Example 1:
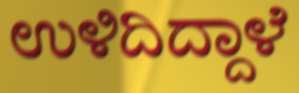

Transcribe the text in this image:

ಉಳಿದಿದ್ದಾಳೆ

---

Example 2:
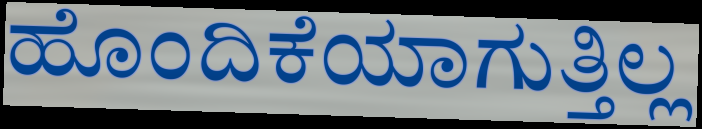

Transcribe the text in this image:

ಹೊಂದಿಕೆಯಾಗುತ್ತಿಲ್ಲ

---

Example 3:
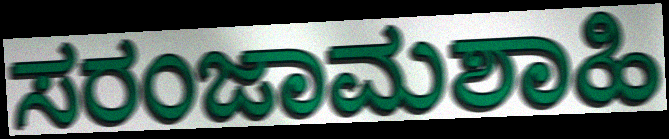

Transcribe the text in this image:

ಸರಂಜಾಮಶಾಹಿ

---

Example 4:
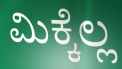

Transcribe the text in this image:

ಮಿಕ್ಕೆಲ್ಲ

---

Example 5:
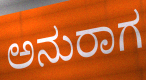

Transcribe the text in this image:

ಅನುರಾಗ